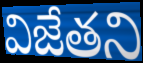
విజేతని